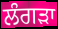
ਲੰਗੜਾ